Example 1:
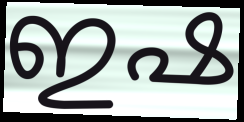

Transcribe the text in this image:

ഇഷ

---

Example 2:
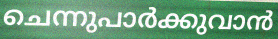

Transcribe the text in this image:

ചെന്നുപാർക്കുവാൻ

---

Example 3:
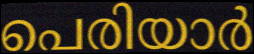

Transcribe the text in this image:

പെരിയാർ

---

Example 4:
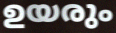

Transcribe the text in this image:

ഉയരും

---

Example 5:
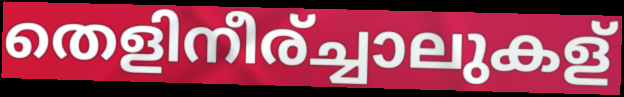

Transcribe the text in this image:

തെളിനീര്ച്ചാലുകള്